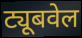
ट्यूबवेल